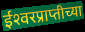
ईश्वरप्राप्तीच्या